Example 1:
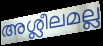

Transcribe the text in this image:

അശ്ലീലമല്ല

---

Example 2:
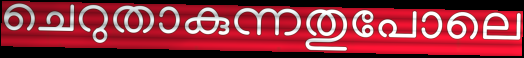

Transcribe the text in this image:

ചെറുതാകുന്നതുപോലെ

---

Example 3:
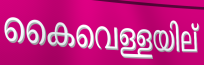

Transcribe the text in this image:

കൈവെള്ളയില്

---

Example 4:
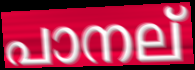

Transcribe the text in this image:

പാനല്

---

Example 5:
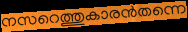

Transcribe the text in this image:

നസറെത്തുകാരൻതന്നെ